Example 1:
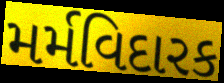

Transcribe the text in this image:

મર્મવિદારક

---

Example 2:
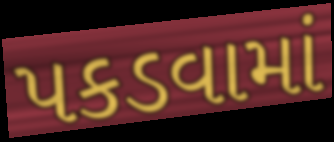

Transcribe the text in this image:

પકડવામાં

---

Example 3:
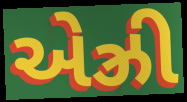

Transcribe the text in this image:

એઝ્રી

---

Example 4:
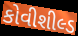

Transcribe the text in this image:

કોવીશીલ્ડ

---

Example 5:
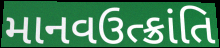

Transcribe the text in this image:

માનવઉત્ક્રાંતિ